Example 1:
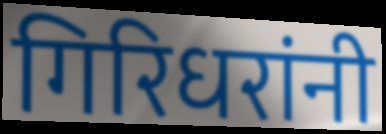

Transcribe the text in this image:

गिरिधरांनी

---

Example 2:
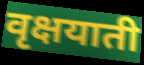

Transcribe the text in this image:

वृक्षयाती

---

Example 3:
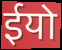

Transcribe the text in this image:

ईयो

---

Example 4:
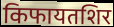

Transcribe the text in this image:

किफायतशिर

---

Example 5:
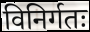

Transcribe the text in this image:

विनिर्गतः